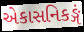
એકાસનિકઙ્ગં